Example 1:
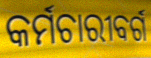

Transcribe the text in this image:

କର୍ମଚାରୀବର୍ଗ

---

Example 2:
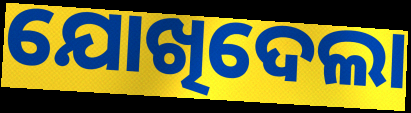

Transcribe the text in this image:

ଯୋଖିଦେଲା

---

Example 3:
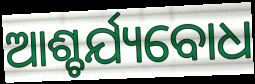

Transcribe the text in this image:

ଆଶ୍ଚର୍ଯ୍ୟବୋଧ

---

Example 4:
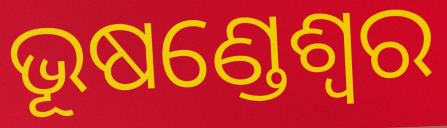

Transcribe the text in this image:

ଭୂଷଣ୍ଡେଶ୍ଵର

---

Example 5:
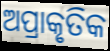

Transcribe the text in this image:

ଅପ୍ରାକୃତିକ